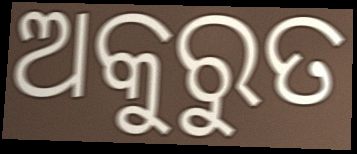
ଅକୁରୁତ